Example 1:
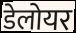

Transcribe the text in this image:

डेलोयर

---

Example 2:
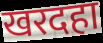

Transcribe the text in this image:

खरदहा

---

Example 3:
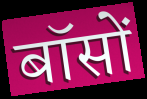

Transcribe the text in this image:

बॉसों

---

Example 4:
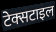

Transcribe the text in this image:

टेक्‍सटाइल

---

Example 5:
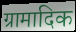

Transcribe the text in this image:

ग्रामादिक